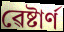
ৱেষ্টাৰ্ণ